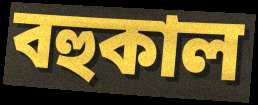
বহুকাল